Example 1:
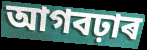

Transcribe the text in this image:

আগবঢ়াৰ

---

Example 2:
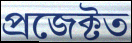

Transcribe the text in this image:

প্ৰজেক্টত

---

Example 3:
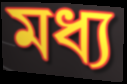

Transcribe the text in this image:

মধ্য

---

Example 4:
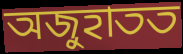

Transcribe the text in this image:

অজুহাতত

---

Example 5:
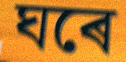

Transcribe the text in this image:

ঘৰে